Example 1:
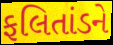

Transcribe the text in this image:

ફલિતાંડને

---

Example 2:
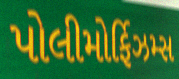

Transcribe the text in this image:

પોલીમોર્ફિઝમ્સ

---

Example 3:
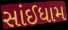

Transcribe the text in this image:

સાંઈધામ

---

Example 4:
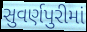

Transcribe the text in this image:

સુવર્ણપુરીમાં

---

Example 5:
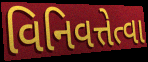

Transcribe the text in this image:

વિનિવત્તેત્વા